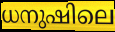
ധനുഷിലെ